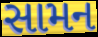
સામન